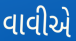
વાવીએ